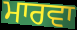
ਮਾਰਵਾ